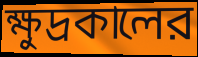
ক্ষুদ্রকালের